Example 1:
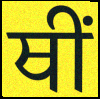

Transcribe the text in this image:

ਥੀਂ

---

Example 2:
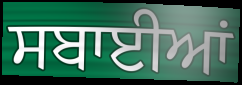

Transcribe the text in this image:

ਸਬਾਈਆਂ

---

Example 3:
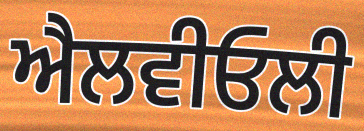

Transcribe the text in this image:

ਐਲਵੀਓਲੀ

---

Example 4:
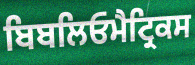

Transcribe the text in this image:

ਬਿਬਲਿਓਮੈਟ੍ਰਿਕਸ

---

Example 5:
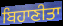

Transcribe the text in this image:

ਬਿਹਾਣੀਤਾ